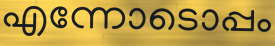
എന്നോടൊപ്പം